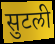
सुटली